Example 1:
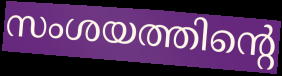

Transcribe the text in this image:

സംശയത്തിന്റെ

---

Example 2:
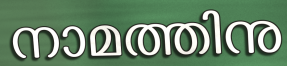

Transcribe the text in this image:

നാമത്തിനു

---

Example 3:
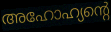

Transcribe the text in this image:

അഹോഹ്യന്റെ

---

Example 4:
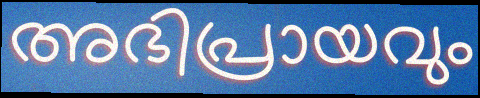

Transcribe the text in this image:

അഭിപ്രായവും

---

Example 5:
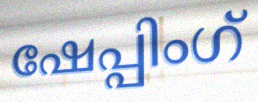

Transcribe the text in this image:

ഷേപ്പിംഗ്